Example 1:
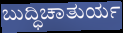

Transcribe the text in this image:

ಬುದ್ಧಿಚಾತುರ್ಯ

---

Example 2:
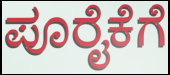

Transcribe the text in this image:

ಪೂರೈಕೆಗೆ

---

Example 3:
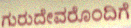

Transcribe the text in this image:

ಗುರುದೇವರೊಂದಿಗೆ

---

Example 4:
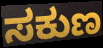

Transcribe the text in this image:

ಸಕುಣ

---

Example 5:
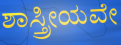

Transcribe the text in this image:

ಶಾಸ್ತ್ರೀಯವೇ